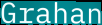
Grahan